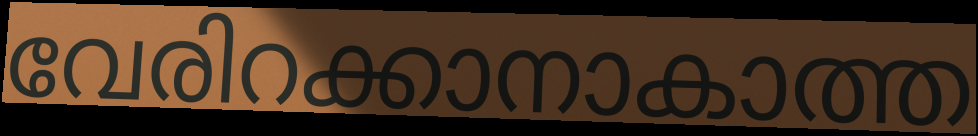
വേരിറക്കാനാകാത്ത